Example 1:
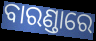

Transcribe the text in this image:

ବାରଣ୍ଡାରେ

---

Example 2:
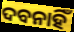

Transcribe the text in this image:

ଦବନାହିଁ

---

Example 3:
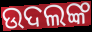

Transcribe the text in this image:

ଉଦଲଙ୍କ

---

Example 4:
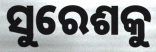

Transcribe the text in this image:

ସୁରେଶକୁ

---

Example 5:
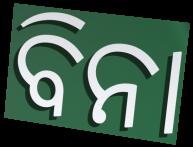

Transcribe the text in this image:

ବିନା